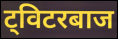
ट्विटरबाज